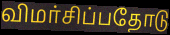
விமர்சிப்பதோடு